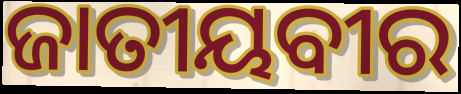
ଜାତୀୟବୀର